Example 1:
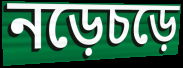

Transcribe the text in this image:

নড়েচড়ে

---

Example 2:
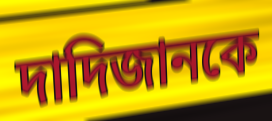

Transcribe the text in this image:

দাদিজানকে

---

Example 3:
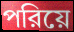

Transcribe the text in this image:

পরিয়ে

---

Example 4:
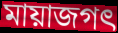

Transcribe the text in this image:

মায়াজগৎ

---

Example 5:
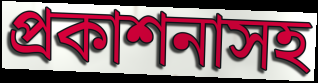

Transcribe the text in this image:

প্রকাশনাসহ